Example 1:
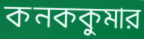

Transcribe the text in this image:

কনককুমার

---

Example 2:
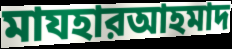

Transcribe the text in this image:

মাযহারআহমাদ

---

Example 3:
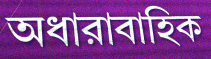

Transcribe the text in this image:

অধারাবাহিক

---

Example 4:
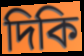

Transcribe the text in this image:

দিকি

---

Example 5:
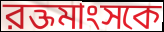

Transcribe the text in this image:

রক্তমাংসকে